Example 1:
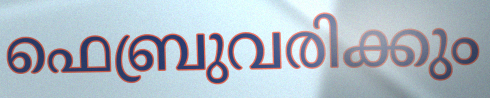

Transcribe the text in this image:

ഫെബ്രുവരിക്കും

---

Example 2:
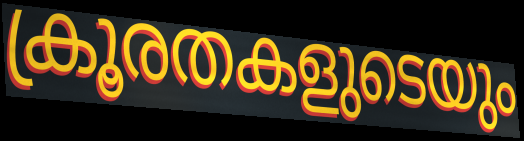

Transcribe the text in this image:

ക്രൂരതകളുടെയും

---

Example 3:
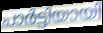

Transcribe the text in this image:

പാർട്ടിയായി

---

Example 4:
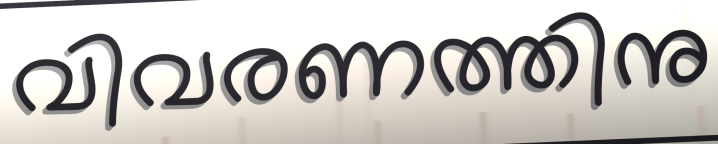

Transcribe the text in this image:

വിവരണത്തിനു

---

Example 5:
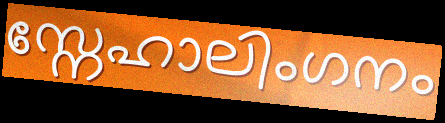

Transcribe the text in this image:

സ്നേഹാലിംഗനം